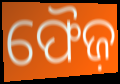
ଫୈଜ଼